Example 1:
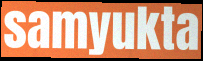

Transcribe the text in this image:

samyukta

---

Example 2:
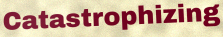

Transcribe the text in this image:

Catastrophizing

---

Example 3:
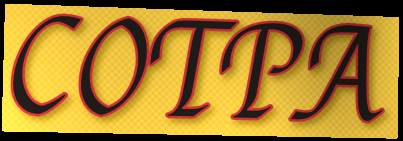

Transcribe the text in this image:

COTPA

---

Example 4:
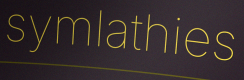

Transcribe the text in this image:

symlathies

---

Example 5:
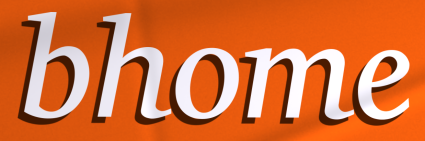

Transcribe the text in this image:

bhome